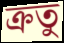
ক্রতু